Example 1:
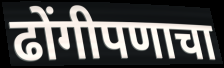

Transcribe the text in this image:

ढोंगीपणाचा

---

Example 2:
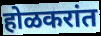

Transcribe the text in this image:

होळकरांत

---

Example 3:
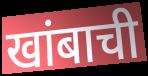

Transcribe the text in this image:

खांबाची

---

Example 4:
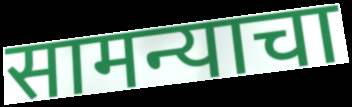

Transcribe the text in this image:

सामन्याचा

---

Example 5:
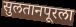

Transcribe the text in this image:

सुलतानपूरला